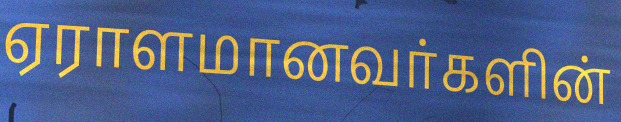
ஏராளமானவர்களின்